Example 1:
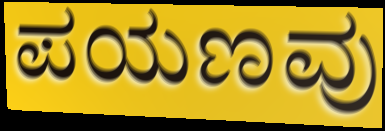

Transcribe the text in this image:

ಪಯಣವು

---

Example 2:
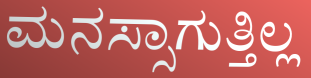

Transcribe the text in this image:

ಮನಸ್ಸಾಗುತ್ತಿಲ್ಲ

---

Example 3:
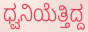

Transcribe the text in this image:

ಧ್ವನಿಯೆತ್ತಿದ್ದ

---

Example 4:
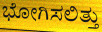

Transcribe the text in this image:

ಭೋಗಿಸಲಿತ್ತು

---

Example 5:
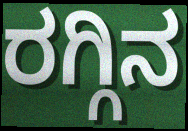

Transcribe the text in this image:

ರಗ್ಗಿನ